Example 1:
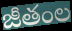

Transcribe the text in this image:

జీతంల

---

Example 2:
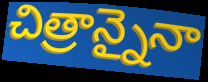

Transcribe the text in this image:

చిత్రాన్నైనా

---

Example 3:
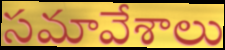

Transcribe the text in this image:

సమావేశాలు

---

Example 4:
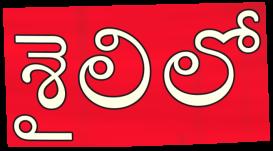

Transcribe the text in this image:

శైలిలో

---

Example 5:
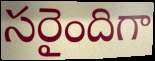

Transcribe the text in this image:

సరైందిగా